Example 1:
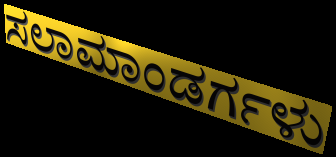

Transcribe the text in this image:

ಸಲಾಮಾಂಡರ್ಗಳು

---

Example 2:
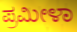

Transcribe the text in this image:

ಪ್ರಮೀಳಾ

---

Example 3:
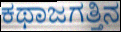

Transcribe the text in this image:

ಕಥಾಜಗತ್ತಿನ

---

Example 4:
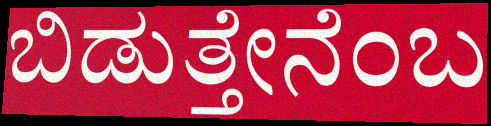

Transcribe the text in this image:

ಬಿಡುತ್ತೇನೆಂಬ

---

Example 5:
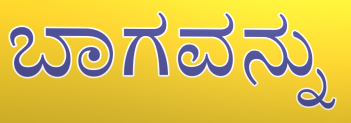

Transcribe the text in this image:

ಬಾಗವನ್ನು